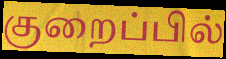
குறைப்பில்